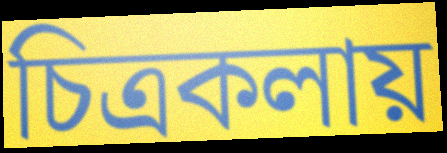
চিত্রকলায়